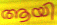
ആയി